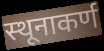
स्थूनाकर्ण